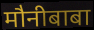
मौनीबाबा